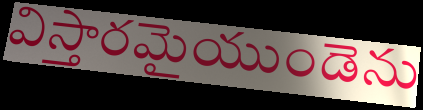
విస్తారమైయుండెను